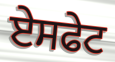
ਏਸਫੇਟ